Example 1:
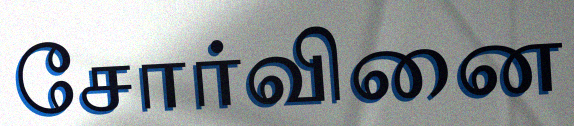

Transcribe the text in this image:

சோர்வினை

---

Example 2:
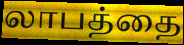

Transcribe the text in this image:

லாபத்தை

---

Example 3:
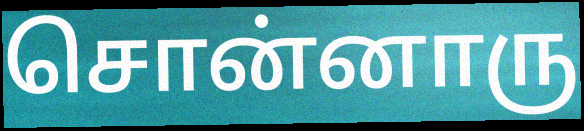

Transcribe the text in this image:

சொன்னாரு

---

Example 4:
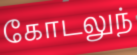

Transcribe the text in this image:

கோடலுந்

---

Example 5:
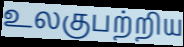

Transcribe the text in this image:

உலகுபற்றிய